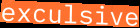
exculsive